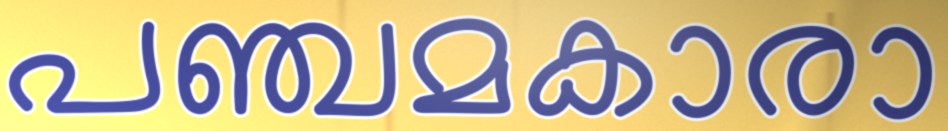
പഞ്ചമകാരാ